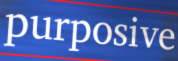
purposive